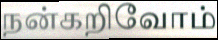
நன்கறிவோம்